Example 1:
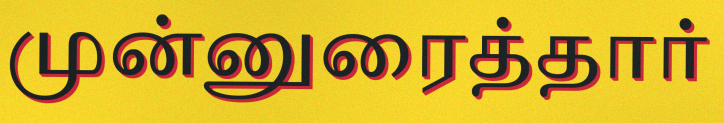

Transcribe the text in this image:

முன்னுரைத்தார்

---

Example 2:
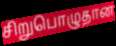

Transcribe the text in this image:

சிறுபொழுதான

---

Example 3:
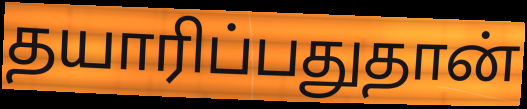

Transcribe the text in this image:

தயாரிப்பதுதான்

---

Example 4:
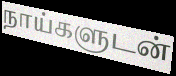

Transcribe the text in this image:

நாய்களுடன்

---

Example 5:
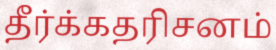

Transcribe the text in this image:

தீர்க்கதரிசனம்